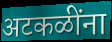
अटकळींना